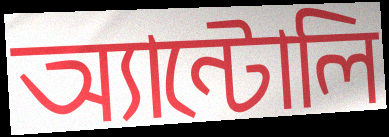
অ্যান্টোলি